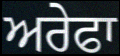
ਅਰੇਫਾ